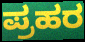
ಪ್ರಹರ